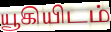
யூகியிடம்